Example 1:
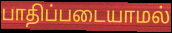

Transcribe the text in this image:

பாதிப்படையாமல்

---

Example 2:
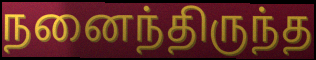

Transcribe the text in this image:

நனைந்திருந்த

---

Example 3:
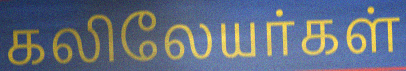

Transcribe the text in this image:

கலிலேயர்கள்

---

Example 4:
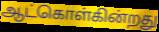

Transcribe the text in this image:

ஆட்கொள்கின்றது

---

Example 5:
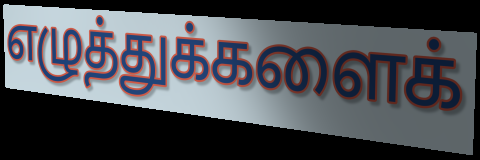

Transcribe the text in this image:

எழுத்துக்களைக்